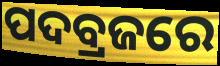
ପଦବ୍ରଜରେ